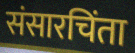
संसारचिंता